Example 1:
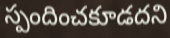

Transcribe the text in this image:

స్పందించకూడదని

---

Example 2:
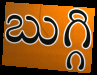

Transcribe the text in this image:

బుగ్గి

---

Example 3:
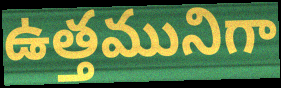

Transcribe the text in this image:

ఉత్తమునిగా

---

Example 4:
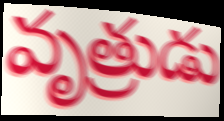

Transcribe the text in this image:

వృత్రుడు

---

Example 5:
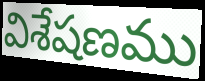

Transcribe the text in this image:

విశేషణము